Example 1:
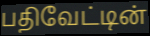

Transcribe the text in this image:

பதிவேட்டின்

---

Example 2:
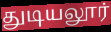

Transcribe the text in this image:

துடியலூர்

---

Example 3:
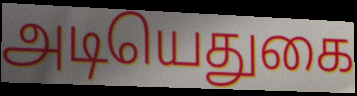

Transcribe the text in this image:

அடியெதுகை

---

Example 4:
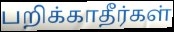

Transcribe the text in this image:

பறிக்காதீர்கள்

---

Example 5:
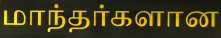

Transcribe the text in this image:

மாந்தர்களான